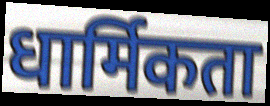
धार्मिकता